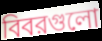
বিবরগুলো